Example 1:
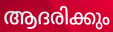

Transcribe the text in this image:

ആദരിക്കും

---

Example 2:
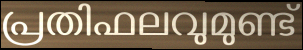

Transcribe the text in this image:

പ്രതിഫലവുമുണ്ട്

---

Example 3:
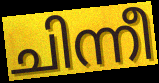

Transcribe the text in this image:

ചിന്നീ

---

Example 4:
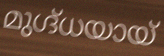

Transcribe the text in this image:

മുഗ്ദ്ധയായ്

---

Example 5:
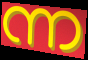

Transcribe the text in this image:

ന്ന